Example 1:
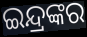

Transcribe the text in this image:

ଇନ୍ଦ୍ରଙ୍କର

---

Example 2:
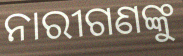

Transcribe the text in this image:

ନାରୀଗଣଙ୍କୁ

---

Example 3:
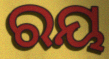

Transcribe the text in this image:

ରୟ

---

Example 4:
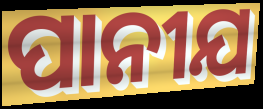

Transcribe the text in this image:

ପାନୀଯ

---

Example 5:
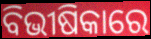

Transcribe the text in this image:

ବିଭୀଷିକାରେ